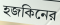
হজকিনের